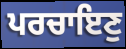
ਪਰਚਾਇਣੁ